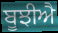
ਬੂਝੀਐ